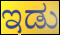
ಇಡು